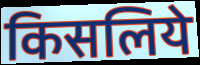
किसलिये